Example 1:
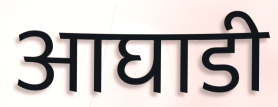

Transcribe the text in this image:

आघाडी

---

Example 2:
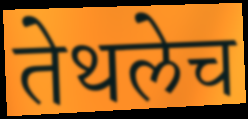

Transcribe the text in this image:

तेथलेच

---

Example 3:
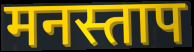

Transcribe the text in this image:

मनस्ताप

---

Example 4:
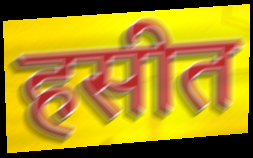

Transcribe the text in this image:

हसीत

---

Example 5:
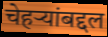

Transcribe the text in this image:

चेहऱ्यांबद्दल